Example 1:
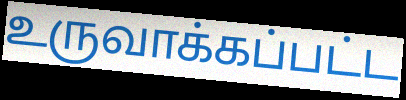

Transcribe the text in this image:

உருவாக்கப்பட்ட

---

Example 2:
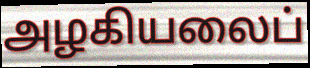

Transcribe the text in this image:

அழகியலைப்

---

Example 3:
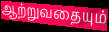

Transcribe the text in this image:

ஆற்றுவதையும்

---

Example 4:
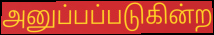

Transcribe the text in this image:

அனுப்பப்படுகின்ற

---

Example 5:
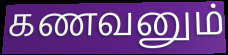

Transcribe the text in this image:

கணவனும்